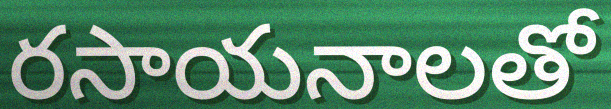
రసాయనాలతో